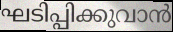
ഘടിപ്പിക്കുവാൻ